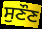
ਸੁਣੌਣ